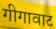
गीगावाट